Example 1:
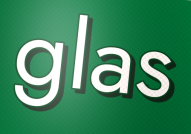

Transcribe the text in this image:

glas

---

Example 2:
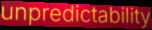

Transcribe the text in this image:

unpredictability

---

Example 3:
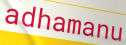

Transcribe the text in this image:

adhamanu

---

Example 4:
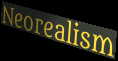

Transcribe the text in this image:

Neorealism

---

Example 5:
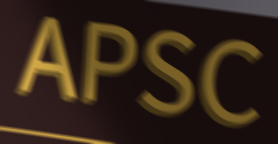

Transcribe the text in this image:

APSC